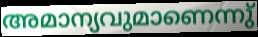
അമാന്യവുമാണെന്നു്